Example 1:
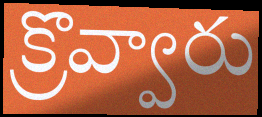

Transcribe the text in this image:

క్రొవ్వారు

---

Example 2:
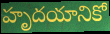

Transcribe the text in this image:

హృదయానికో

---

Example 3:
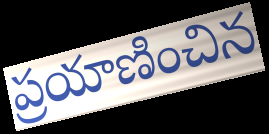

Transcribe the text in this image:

ప్రయాణించిన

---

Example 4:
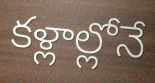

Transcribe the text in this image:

కళ్లాల్లోనే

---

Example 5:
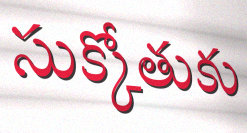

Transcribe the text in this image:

సుక్కోతుకు